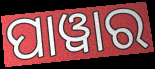
ପାୱାର